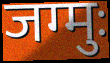
जग्मुः